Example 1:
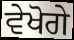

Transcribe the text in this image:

ਵੇਖੋਗੇ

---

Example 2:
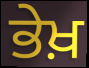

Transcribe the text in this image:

ਭੇਖ਼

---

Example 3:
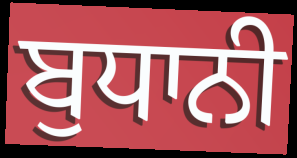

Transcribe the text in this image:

ਬੁਧਾਨੀ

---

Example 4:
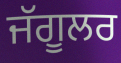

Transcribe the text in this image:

ਜੱਗੂਲਰ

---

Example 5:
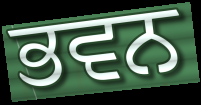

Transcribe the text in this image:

ਭਵਨ